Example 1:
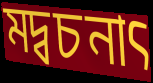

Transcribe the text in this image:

মদ্বচনাৎ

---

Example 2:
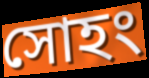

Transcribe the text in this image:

সোহং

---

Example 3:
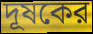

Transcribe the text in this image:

দূষকের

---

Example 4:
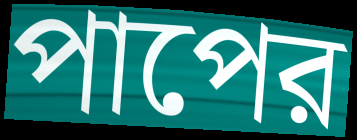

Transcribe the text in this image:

পাপের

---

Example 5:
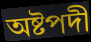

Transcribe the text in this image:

অষ্টপদী